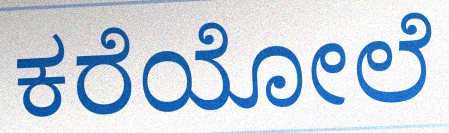
ಕರೆಯೋಲೆ